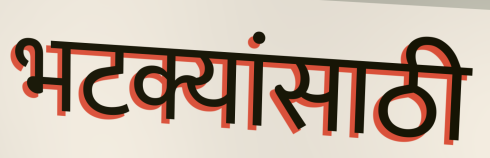
भटक्यांसाठी